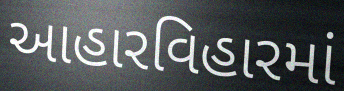
આહારવિહારમાં